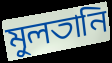
মুলতানি